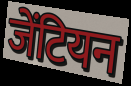
जेंटियन